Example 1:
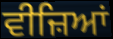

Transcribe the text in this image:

ਵੀਜ਼ਿਆਂ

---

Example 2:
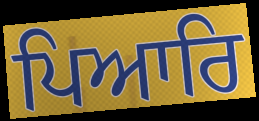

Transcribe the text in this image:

ਪਿਆਰਿ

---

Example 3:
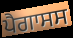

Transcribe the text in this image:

ਪੈਗਾਸਸ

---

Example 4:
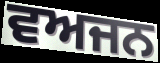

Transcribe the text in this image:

ਵਅਜਨ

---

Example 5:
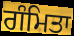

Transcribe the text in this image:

ਗੰਮਿਤਾ